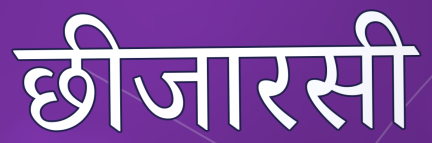
छीजारसी